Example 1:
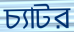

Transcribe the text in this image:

চ্যাটর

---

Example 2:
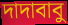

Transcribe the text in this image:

দাদাবাবু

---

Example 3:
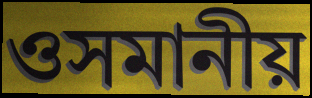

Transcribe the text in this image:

ওসমানীয়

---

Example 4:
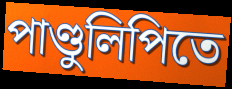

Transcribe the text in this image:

পাণ্ডুলিপিতে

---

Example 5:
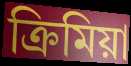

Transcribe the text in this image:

ক্রিমিয়া